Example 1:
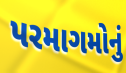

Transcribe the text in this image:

પરમાગમોનું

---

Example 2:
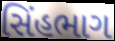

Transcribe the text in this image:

સિંહભાગ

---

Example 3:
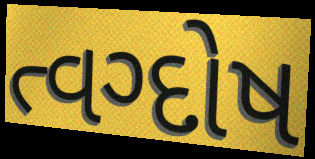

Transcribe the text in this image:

ત્વગ્દોષ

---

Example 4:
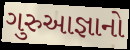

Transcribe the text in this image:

ગુરુઆજ્ઞાનો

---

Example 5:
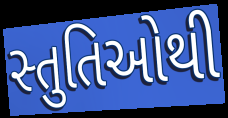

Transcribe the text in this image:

સ્તુતિઓથી